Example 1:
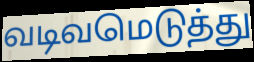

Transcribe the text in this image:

வடிவமெடுத்து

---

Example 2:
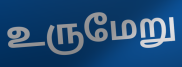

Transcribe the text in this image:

உருமேறு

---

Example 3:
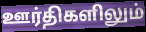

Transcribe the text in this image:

ஊர்திகளிலும்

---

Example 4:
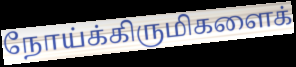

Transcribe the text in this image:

நோய்க்கிருமிகளைக்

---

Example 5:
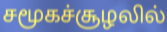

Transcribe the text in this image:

சமூகச்சூழலில்